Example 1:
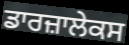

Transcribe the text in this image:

ਡਾਰਜ਼ਾਲੇਕਸ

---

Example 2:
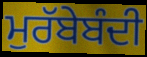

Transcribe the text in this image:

ਮੁਰੱਬੇਬੰਦੀ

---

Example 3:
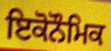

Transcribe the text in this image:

ਇਕੋਨੌਮਿਕ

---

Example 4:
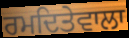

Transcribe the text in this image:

ਰਮਦਿਤੇਵਾਲਾ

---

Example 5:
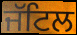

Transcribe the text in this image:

ਜੱਟਿਲ